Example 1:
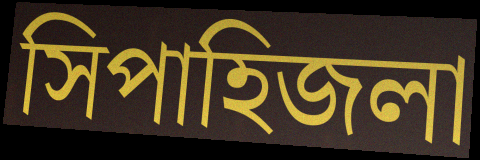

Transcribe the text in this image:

সিপাহিজলা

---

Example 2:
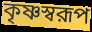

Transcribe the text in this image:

কৃষ্ণস্বরূপ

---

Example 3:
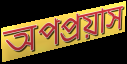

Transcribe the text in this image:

অপপ্রয়াস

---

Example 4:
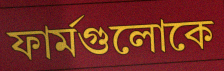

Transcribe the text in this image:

ফার্মগুলোকে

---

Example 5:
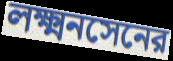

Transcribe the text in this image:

লক্ষ্মনসেনের